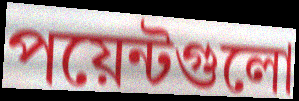
পয়েন্টগুলো